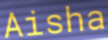
Aisha